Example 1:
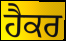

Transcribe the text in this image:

ਹੈਕਰ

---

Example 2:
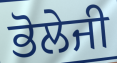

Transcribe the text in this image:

ਭੋਲੇਜੀ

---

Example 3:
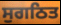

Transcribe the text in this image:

ਸੁਗਠਿਤ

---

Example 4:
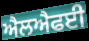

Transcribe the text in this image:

ਐਲਐਫਈ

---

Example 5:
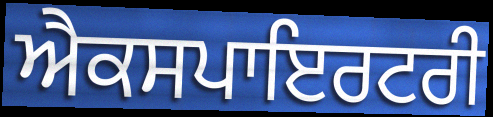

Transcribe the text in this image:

ਐਕਸਪਾਇਰਟਰੀ